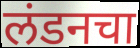
लंडनचा